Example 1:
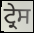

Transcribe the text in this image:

ਟ੍ਰੇਸ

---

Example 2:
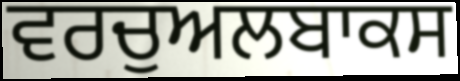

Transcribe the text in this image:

ਵਰਚੁਅਲਬਾਕਸ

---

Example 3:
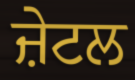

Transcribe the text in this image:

ਜ਼ੇਟਲ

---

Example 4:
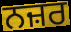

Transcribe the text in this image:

ਨਜ਼ਰ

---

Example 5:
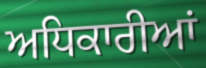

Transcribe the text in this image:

ਅਧਿਕਾਰੀਆਂ